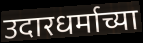
उदारधर्माच्या